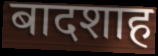
बादशाह